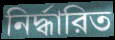
নির্দ্ধারিত